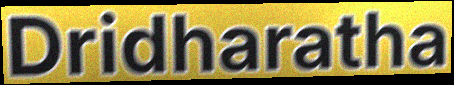
Dridharatha